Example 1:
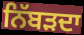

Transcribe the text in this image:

ਨਿੱਬੜਦਾ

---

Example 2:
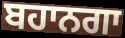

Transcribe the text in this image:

ਬਹਾਨਗਾ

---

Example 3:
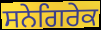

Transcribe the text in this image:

ਸਨੇਗਿਰੇਕ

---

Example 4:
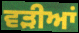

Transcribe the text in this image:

ਵੜੀਆਂ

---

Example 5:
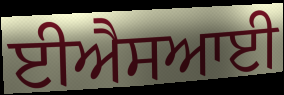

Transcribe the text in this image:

ਈਐਸਆਈ